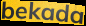
bekada